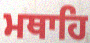
ਮਥਾਹਿ